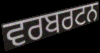
ਵਰਬਰਟਨ